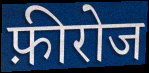
फ़ीरोज